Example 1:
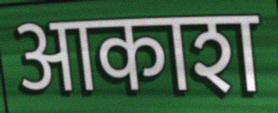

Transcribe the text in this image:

आकाश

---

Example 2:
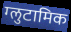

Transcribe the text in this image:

ग्लुटामिक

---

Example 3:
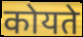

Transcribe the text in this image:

कोयते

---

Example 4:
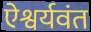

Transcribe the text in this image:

ऐश्वर्यवंत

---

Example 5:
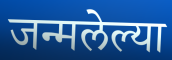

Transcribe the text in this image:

जन्मलेल्या